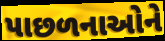
પાછળનાઓને